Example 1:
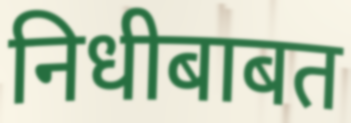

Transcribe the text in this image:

निधीबाबत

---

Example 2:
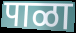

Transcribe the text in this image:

पाळा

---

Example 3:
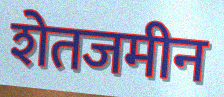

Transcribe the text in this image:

शेतजमीन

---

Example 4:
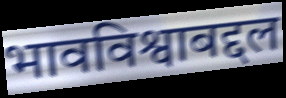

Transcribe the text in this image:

भावविश्वाबद्दल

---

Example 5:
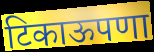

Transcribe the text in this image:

टिकाऊपणा